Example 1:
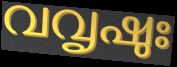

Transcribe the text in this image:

വവൃഷുഃ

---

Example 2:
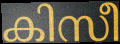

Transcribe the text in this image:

കിസീ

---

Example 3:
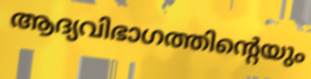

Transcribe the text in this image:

ആദ്യവിഭാഗത്തിന്റെയും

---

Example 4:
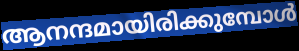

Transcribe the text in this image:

ആനന്ദമായിരിക്കുമ്പോൾ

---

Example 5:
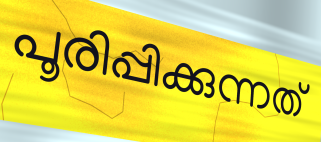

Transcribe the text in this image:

പൂരിപ്പിക്കുന്നത്